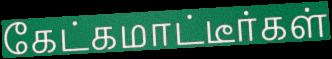
கேட்கமாட்டீர்கள்